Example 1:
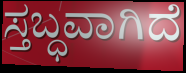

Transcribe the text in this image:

ಸ್ತಬ್ಧವಾಗಿದೆ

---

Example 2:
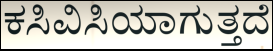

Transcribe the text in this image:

ಕಸಿವಿಸಿಯಾಗುತ್ತದೆ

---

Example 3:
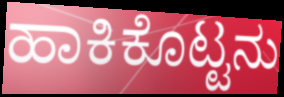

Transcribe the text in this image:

ಹಾಕಿಕೊಟ್ಟನು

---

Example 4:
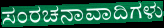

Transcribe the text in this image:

ಸಂರಚನಾವಾದಿಗಳು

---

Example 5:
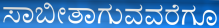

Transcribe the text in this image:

ಸಾಬೀತಾಗುವವರೆಗೂ